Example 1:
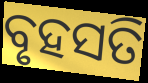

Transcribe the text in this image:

ବୃହସତି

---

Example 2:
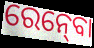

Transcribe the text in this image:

ରେନ୍‍ବୋ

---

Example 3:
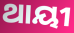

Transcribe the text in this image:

ଥାୟୀ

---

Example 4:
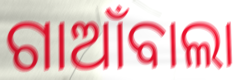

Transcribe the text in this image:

ଗାଆଁବାଲା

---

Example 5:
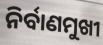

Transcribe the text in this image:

ନିର୍ବାଣମୁଖୀ